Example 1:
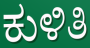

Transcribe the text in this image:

ಕುಳಿತಿ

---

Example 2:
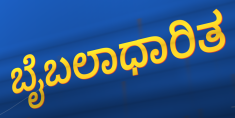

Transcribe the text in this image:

ಬೈಬಲಾಧಾರಿತ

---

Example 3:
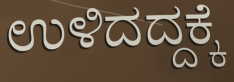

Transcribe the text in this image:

ಉಳಿದದ್ದಕ್ಕೆ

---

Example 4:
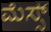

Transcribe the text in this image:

ಮೆಸ್ಸ್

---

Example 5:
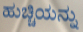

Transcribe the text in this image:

ಹುಚ್ಚಿಯನ್ನು